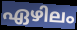
ഏഴിലം